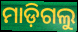
ମାଡ଼ିଗଲୁ